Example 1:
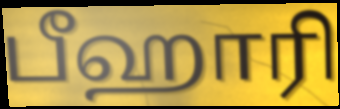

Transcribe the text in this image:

பீஹாரி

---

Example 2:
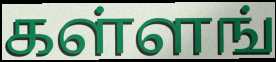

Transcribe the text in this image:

கள்ளங்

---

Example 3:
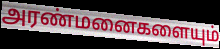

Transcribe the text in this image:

அரண்மனைகளையும்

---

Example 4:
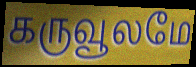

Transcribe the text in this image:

கருவூலமே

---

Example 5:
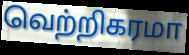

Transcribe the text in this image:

வெற்றிகரமா